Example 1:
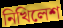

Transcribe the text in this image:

নিখিলেশ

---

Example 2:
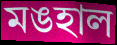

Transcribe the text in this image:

মঙহাল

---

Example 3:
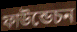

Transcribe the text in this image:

ফাউন্ডেচন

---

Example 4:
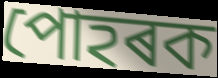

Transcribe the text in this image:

পোহৰক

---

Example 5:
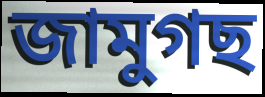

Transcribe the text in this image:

জামুগছ